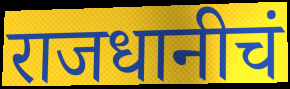
राजधानीचं